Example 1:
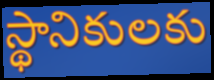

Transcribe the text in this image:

స్థానికులకు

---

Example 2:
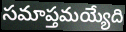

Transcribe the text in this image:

సమాప్తమయ్యేది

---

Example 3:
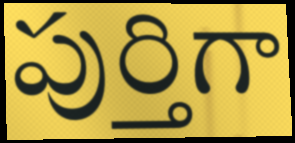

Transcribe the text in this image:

పుర్తిగా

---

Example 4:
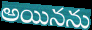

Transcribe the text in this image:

అయినను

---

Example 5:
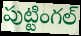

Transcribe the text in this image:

పుట్టింగల్